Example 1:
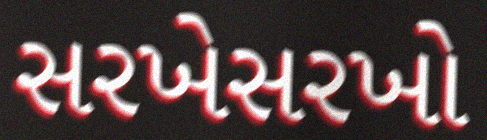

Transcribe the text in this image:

સરખેસરખો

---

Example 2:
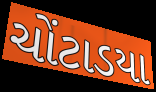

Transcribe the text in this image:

ચોંટાડયા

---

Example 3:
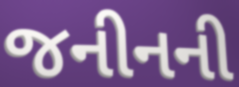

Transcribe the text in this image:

જનીનની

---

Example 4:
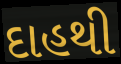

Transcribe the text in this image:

દાહથી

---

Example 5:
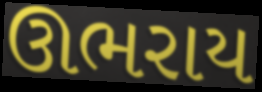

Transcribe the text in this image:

ઊભરાય